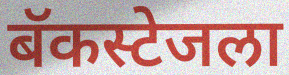
बॅकस्टेजला